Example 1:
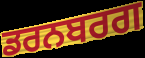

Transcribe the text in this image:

ਡਰਨਬਰਗ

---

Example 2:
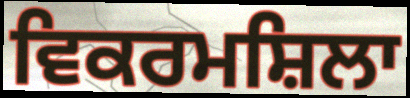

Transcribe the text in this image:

ਵਿਕਰਮਸ਼ਿਲਾ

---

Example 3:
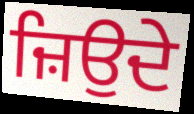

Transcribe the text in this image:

ਜ਼ਿਉਦੇ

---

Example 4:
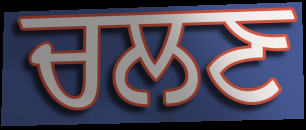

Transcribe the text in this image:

ਚਲਣ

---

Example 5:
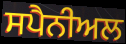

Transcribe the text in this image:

ਸਪੈਨੀਅਲ